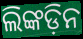
ଲିଙ୍କଡ଼ିନ